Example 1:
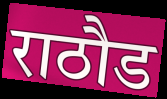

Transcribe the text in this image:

राठौड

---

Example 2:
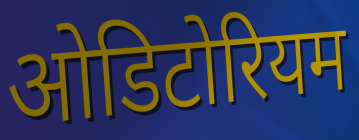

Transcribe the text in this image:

ओडिटोरियम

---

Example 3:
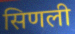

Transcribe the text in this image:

सिणली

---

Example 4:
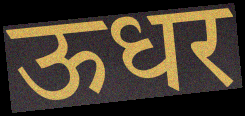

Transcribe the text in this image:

ऊधर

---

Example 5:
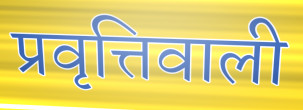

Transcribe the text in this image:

प्रवृत्तिवाली